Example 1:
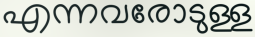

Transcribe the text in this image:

എന്നവരോടുള്ള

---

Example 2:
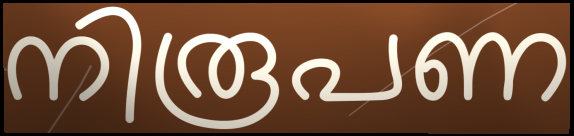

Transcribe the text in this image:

നിരൂപണ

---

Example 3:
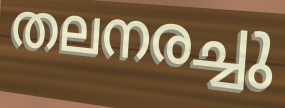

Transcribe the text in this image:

തലനരച്ചു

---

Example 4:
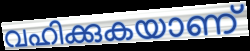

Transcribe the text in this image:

വഹിക്കുകയാണ്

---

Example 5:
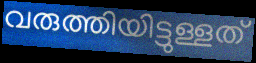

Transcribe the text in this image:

വരുത്തിയിട്ടുള്ളത്